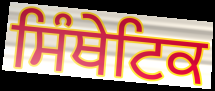
ਸਿੰਥੇਟਿਕ